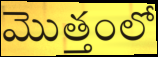
మొత్తంలో